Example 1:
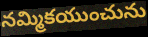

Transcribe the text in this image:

నమ్మికయుంచును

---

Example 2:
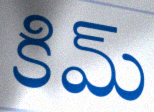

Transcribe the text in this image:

కిమ్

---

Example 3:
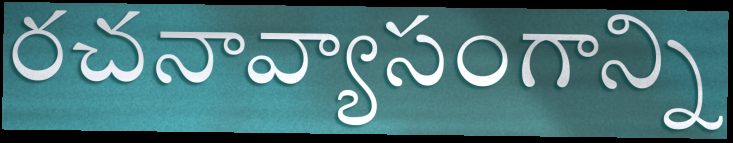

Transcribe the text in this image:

రచనావ్యాసంగాన్ని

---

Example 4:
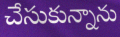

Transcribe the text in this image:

చేసుకున్నాను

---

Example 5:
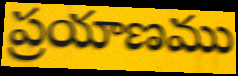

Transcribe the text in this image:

ప్రయాణము